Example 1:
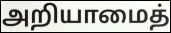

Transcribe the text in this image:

அறியாமைத்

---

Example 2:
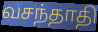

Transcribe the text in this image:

வசந்தாதி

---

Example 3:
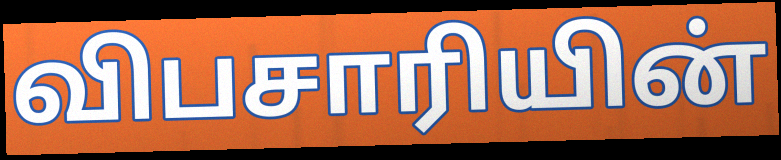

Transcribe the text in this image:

விபசாரியின்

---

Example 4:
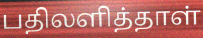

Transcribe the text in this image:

பதிலளித்தாள்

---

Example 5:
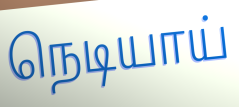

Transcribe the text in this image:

நெடியாய்